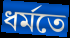
ধর্মতে